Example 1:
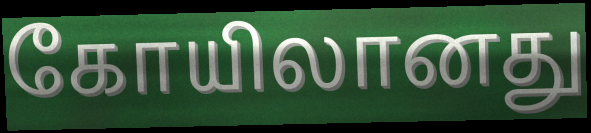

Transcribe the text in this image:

கோயிலானது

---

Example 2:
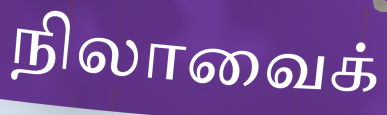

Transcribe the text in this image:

நிலாவைக்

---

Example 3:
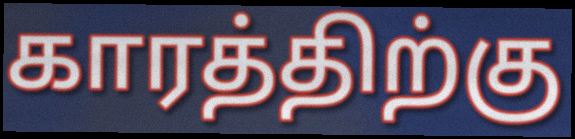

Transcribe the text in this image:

காரத்திற்கு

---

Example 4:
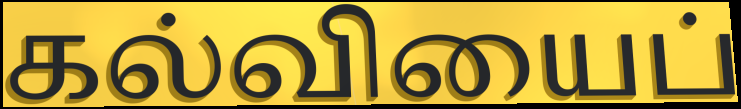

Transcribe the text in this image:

கல்வியைப்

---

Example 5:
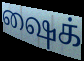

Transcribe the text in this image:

ஷைக்